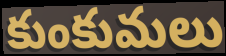
కుంకుమలు